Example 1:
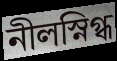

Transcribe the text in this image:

নীলস্নিগ্ধ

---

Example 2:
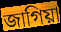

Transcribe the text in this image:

জাগিয়া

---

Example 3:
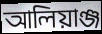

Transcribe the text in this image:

আলিয়াঞ্জ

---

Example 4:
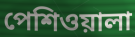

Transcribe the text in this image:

পেশিওয়ালা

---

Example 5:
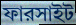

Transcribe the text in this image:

ফারসাইট